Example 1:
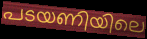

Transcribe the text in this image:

പടയണിയിലെ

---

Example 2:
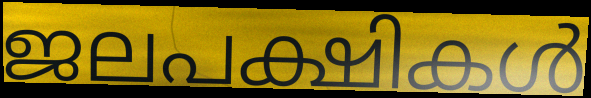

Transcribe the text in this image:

ജലപക്ഷികൾ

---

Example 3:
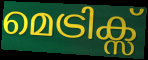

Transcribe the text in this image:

മെട്രിക്സ്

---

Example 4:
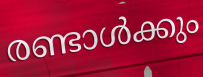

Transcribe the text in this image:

രണ്ടാൾക്കും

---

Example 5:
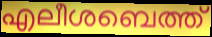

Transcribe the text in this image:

എലീശബെത്ത്